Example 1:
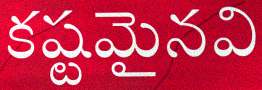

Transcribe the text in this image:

కష్టమైనవి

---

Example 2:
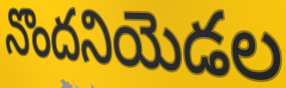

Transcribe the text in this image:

నొందనియెడల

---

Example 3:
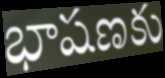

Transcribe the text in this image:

భాషణకు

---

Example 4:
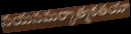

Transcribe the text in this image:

నయనమర్కాత్మకతయా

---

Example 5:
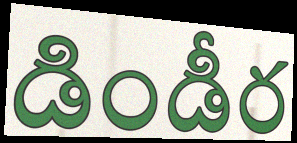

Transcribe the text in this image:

డిండీర